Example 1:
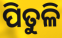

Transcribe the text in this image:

ପିତୁଳି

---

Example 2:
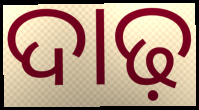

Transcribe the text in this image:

ଦାଢ଼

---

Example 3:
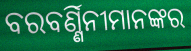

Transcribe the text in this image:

ବରବର୍ଣ୍ଣିନୀମାନଙ୍କର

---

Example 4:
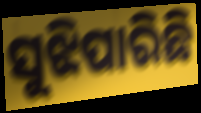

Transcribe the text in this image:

ସୁଝିପାରିଛି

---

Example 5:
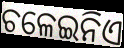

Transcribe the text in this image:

ଚଳେଇନିଏ